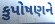
કુપોષણને